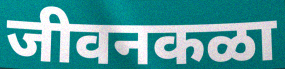
जीवनकळा